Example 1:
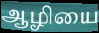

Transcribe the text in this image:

ஆழியை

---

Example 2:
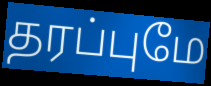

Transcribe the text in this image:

தரப்புமே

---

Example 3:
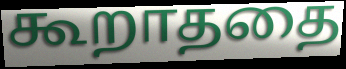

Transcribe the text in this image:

கூறாததை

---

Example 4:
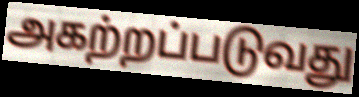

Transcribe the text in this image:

அகற்றப்படுவது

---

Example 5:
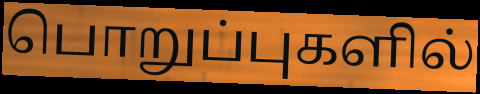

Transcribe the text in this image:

பொறுப்புகளில்